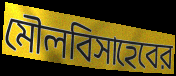
মৌলবিসাহেবের